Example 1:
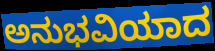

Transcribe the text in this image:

ಅನುಭವಿಯಾದ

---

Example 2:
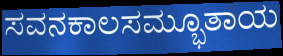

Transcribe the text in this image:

ಸವನಕಾಲಸಮ್ಭೂತಾಯ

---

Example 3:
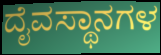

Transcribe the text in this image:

ದೈವಸ್ಥಾನಗಳ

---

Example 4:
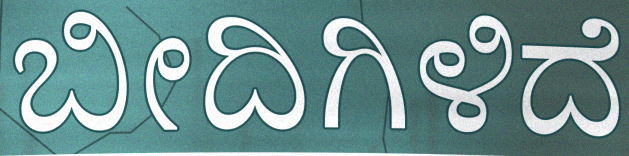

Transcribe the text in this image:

ಬೀದಿಗಿಳಿದೆ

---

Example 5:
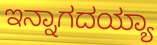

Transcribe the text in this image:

ಇನ್ನಾಗದಯ್ಯಾ